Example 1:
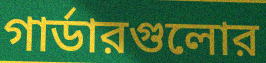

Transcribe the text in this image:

গার্ডারগুলোর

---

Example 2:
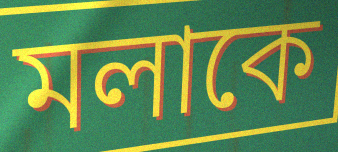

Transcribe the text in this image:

মলাকে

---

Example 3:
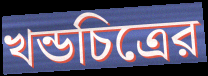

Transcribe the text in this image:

খন্ডচিত্রের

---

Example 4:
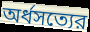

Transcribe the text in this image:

অর্ধসত্যের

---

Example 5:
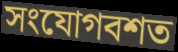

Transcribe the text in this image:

সংযোগবশত